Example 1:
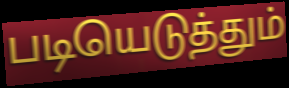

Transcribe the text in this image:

படியெடுத்தும்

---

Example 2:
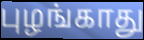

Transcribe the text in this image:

புழங்காது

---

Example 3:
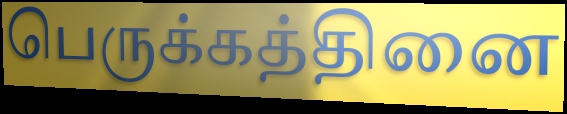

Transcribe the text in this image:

பெருக்கத்தினை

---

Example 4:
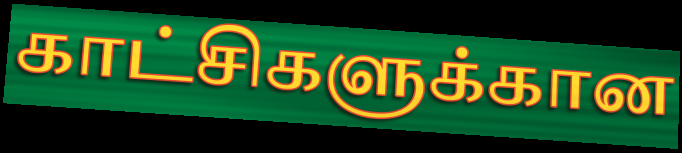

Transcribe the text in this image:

காட்சிகளுக்கான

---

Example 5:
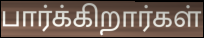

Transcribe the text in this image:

பார்க்கிறார்கள்